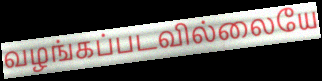
வழங்கப்படவில்லையே